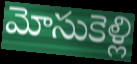
మోసుకెళ్లి